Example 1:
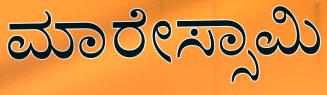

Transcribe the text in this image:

ಮಾರೇಸ್ಸಾಮಿ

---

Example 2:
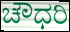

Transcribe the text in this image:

ಚೌಧರಿ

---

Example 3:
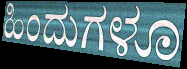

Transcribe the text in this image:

ಹಿಂದುಗಳೂ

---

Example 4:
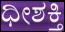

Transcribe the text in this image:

ಧೀಶಕ್ತಿ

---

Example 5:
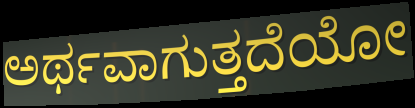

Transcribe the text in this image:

ಅರ್ಥವಾಗುತ್ತದೆಯೋ